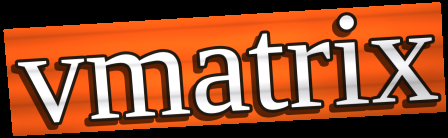
vmatrix